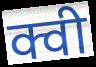
क्वी